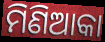
ମିଣିଆକା